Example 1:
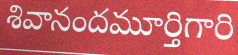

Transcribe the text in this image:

శివానందమూర్తిగారి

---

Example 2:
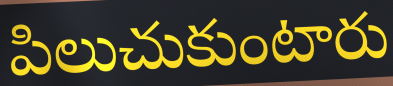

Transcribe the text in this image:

పిలుచుకుంటారు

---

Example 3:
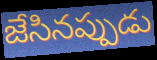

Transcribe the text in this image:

జేసినప్పుడు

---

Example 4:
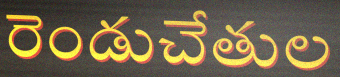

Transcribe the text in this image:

రెండుచేతుల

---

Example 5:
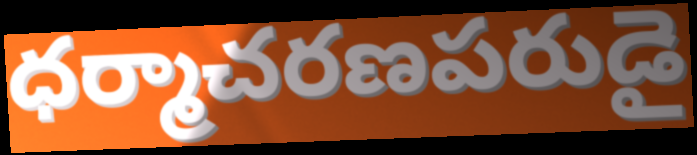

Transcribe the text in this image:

ధర్మాచరణపరుడై